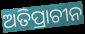
ଅତିପ୍ରାଚୀନ